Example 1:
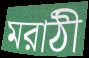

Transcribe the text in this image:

মরাঠী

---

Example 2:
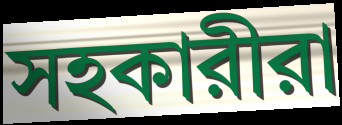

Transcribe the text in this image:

সহকারীরা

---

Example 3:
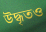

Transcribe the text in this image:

উদ্ধৃতও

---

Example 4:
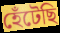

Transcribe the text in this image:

হেঁটেছি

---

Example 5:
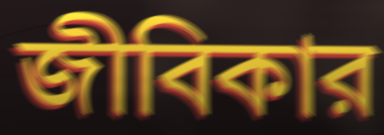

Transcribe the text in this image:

জীবিকার